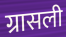
ग्रासली